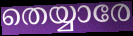
തെയ്യാരേ